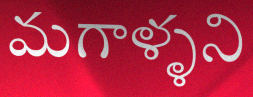
మగాళ్ళని